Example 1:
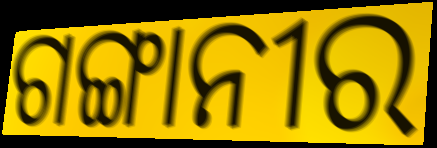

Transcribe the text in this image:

ଗଙ୍ଗାନୀର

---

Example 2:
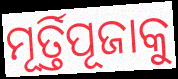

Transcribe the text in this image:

ମୂର୍ତ୍ତିପୂଜାକୁ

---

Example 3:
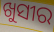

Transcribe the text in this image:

ଖୁସୀର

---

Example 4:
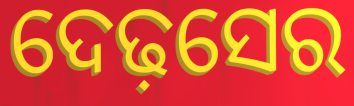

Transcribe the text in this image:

ଦେଢ଼ସେର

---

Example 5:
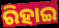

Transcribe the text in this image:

ରିହାଇ